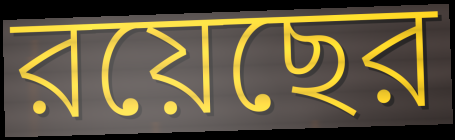
রয়েছের